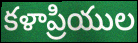
కళాప్రియుల